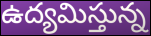
ఉద్యమిస్తున్న